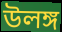
উলঙ্গ